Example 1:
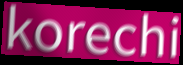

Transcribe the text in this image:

korechi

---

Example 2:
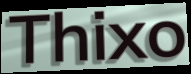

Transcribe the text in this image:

Thixo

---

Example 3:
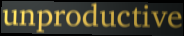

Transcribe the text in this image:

unproductive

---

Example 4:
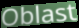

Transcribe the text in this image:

Oblast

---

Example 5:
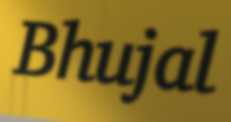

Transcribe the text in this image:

Bhujal